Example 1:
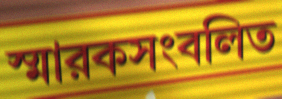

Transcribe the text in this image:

স্মারকসংবলিত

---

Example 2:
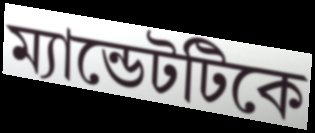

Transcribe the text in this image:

ম্যান্ডেটটিকে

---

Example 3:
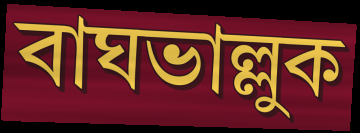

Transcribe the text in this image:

বাঘভাল্লুক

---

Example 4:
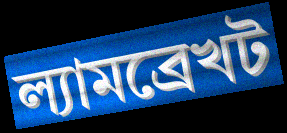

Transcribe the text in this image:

ল্যামব্রেখট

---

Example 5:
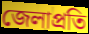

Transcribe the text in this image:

জেলাপ্রতি